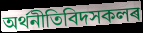
অৰ্থনীতিবিদসকলৰ